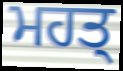
ਮਹਤ੍